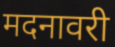
मदनावरी